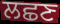
ਲਛਣ